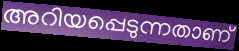
അറിയപ്പെടുന്നതാണ്